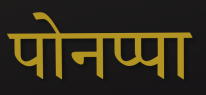
पोनप्‍पा